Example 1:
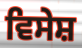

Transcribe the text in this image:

ਵਿਸੇਸ਼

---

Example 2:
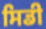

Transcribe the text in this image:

ਸਿਡੀ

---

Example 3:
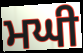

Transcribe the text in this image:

ਮਘੀ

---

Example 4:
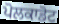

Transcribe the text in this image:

ਪੋਲਕਾਡੋਟ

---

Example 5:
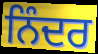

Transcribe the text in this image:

ਨਿੰਦਰ